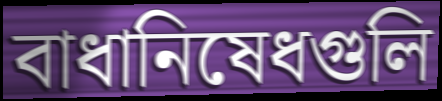
বাধানিষেধগুলি